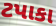
ટપાકા